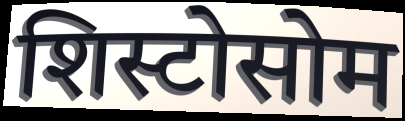
शिस्टोसोम